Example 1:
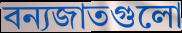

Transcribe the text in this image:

বন্যজাতগুলো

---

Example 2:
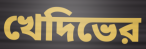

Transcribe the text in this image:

খেদিভের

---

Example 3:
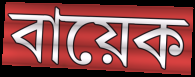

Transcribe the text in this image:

বায়েক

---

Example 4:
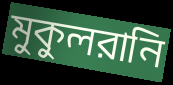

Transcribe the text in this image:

মুকুলরানি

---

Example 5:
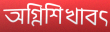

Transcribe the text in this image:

অগ্নিশিখাবৎ